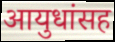
आयुधांसह